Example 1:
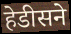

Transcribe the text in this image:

हेडीसने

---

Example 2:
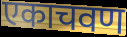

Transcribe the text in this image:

एकाचवण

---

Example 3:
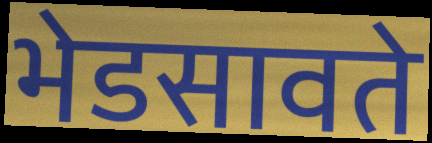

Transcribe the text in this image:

भेडसावते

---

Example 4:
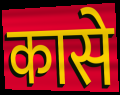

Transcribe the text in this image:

कासे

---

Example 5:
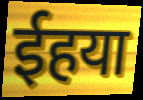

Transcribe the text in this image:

ईहया